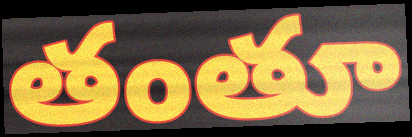
తంతూ